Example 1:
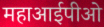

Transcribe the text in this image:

महाआईपीओ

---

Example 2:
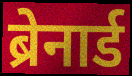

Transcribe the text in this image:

ब्रेनार्ड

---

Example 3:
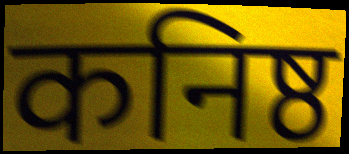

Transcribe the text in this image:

कनिष्ठ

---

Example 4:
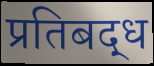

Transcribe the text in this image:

प्रतिबद्ध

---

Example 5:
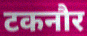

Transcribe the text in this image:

टकनौर